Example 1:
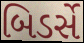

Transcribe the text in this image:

બિડર્સે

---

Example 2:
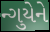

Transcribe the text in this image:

ન્ગુયેને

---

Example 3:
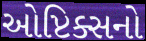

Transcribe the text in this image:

ઓપ્ટિક્સનો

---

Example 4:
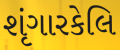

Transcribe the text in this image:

શૃંગારકેલિ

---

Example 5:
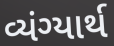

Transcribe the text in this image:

વ્યંગ્યાર્થ